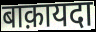
बाक़ायदा